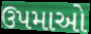
ઉપમાઓ